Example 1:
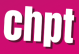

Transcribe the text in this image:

chpt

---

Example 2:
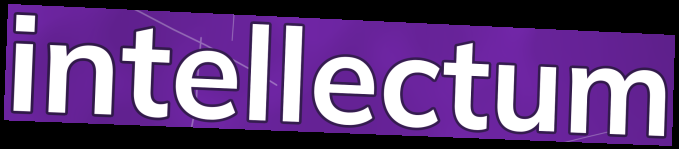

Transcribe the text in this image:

intellectum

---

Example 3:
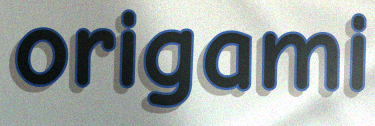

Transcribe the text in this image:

origami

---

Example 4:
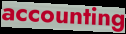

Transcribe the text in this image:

accounting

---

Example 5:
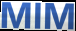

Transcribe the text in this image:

MIM